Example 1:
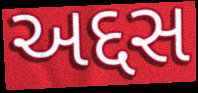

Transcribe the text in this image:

અદ્દસ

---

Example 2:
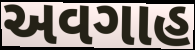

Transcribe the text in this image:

અવગાહ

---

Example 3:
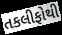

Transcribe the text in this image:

તકલીફોથી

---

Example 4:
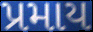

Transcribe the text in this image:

પ્રમાય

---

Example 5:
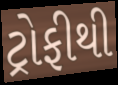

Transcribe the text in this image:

ટ્રોફીથી